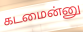
கடமைன்னு